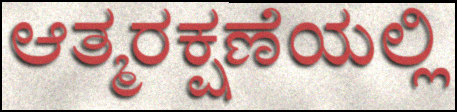
ಆತ್ಮರಕ್ಷಣೆಯಲ್ಲಿ